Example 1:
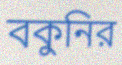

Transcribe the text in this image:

বকুনির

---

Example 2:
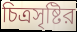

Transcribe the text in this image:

চিত্রসৃষ্টির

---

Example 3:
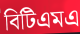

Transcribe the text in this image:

বিটিএমএ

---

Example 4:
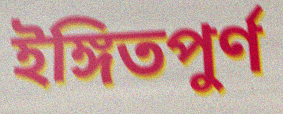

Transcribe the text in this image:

ইঙ্গিতপুর্ণ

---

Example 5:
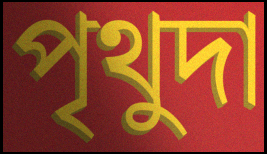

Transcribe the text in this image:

পৃথুদা